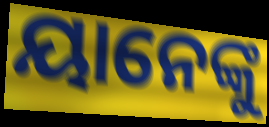
ୟାନେଙ୍କୁ